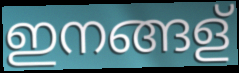
ഇനങ്ങള്